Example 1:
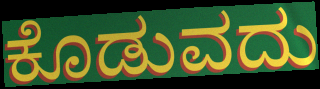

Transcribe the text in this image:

ಕೊಡುವದು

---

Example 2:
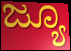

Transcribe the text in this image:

ಜ್ಯೂ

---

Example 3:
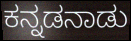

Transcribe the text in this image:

ಕನ್ನಡನಾಡು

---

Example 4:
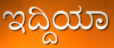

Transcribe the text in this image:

ಇದ್ದಿಯಾ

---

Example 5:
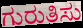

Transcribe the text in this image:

ಗುರುತಿಸು